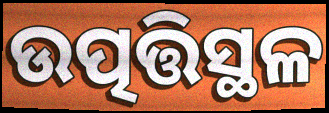
ଉତ୍ପତ୍ତିସ୍ଥଳ